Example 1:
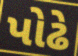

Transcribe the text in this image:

પોઢે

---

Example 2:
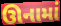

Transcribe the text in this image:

ઊનામાં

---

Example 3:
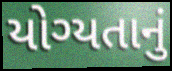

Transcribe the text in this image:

યોગ્યતાનું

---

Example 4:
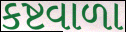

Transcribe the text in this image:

કષ્ટવાળા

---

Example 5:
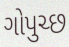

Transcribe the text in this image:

ગોપુચ્છ